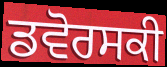
ਡਵੋਰਸਕੀ